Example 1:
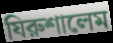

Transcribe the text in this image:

যিরুশালেম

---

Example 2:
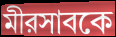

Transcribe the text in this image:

মীরসাবকে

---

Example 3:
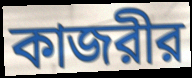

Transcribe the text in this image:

কাজরীর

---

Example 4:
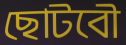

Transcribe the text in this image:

ছোটবৌ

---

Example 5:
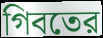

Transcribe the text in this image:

গিবতের